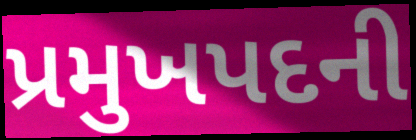
પ્રમુખપદની